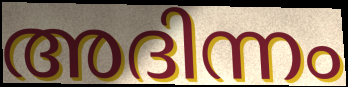
അദിന്നം